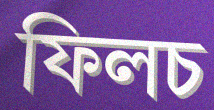
ফিলচ